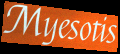
Myesotis